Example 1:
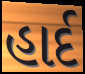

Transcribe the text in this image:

હાર્દ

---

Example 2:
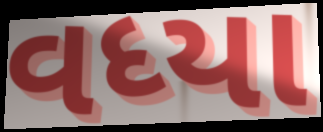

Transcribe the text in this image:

વધ્યા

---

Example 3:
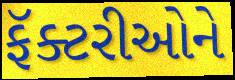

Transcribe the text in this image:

ફૅક્ટરીઓને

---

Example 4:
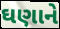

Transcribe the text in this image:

ઘણાને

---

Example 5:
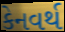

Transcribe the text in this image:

કેનવર્થ